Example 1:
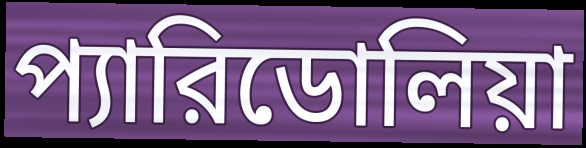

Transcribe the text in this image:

প্যারিডোলিয়া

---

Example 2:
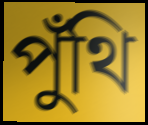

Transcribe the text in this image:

পুঁথি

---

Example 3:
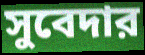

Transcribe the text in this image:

সুবেদার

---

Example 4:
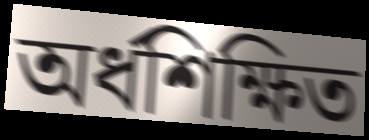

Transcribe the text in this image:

অর্ধশিক্ষিত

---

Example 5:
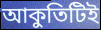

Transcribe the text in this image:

আকুতিটিই